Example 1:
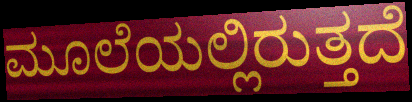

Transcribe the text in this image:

ಮೂಲೆಯಲ್ಲಿರುತ್ತದೆ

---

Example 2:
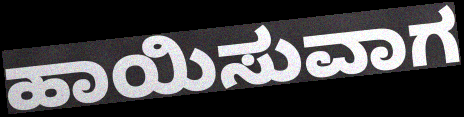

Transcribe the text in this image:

ಹಾಯಿಸುವಾಗ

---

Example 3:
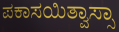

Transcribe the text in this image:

ಪಕಾಸಯಿತ್ವಾಸ್ಸಾ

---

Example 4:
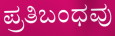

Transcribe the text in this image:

ಪ್ರತಿಬಂಧವು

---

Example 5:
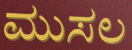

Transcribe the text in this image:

ಮುಸಲ